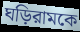
ঘড়িরামকে